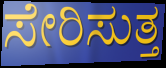
ಸೇರಿಸುತ್ತ